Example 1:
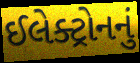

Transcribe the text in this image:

ઈલેક્ટ્રોનનું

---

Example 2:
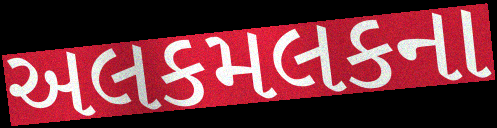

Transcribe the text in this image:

અલકમલકના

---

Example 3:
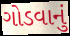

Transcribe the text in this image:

ગોડવાનું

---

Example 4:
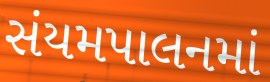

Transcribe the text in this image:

સંયમપાલનમાં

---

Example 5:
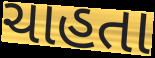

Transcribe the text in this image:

ચાહતા